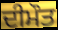
ਦੀਮੌਤ